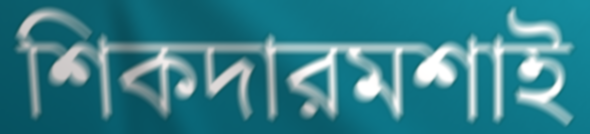
শিকদারমশাই